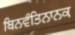
ਬਿਨਵੰਤਿਨਾਨਕ